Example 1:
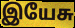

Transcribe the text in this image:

இயேசு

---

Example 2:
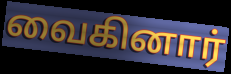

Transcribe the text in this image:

வைகினார்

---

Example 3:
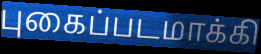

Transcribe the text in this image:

புகைப்படமாக்கி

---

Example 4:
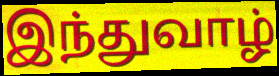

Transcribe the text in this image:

இந்துவாழ்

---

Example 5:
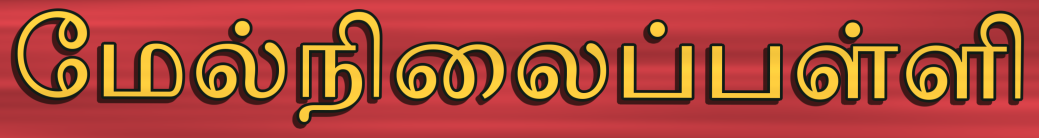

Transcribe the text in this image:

மேல்நிலைப்பள்ளி